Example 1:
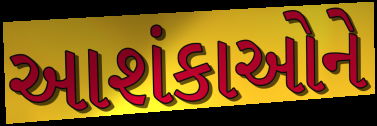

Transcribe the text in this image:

આશંકાઓને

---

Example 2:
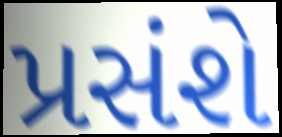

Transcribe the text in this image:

પ્રસંશે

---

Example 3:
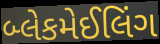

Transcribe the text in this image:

બ્લેકમેઈલિંગ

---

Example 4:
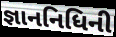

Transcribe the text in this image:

જ્ઞાનનિધિની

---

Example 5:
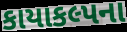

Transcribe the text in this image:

કાયાકલ્પના